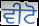
ਵੀਟੋ